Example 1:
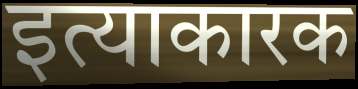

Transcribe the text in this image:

इत्याकारक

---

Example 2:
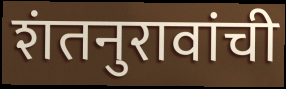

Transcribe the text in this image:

शंतनुरावांची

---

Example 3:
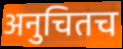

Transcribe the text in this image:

अनुचितच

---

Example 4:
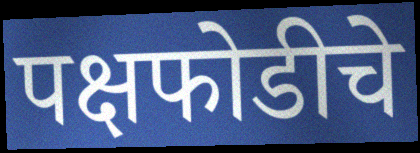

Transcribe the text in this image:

पक्षफोडीचे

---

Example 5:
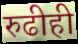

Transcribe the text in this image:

रुढीही